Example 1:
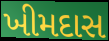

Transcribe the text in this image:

ખીમદાસ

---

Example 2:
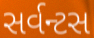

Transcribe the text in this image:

સર્વન્ટસ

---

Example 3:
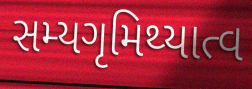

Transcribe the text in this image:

સમ્યગૃમિથ્યાત્વ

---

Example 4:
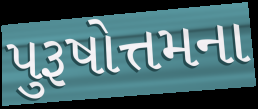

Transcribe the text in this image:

પુરૂષોત્તમના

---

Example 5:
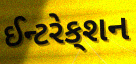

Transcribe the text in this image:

ઈન્ટરેક્‌શન